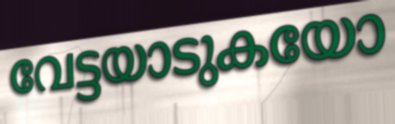
വേട്ടയാടുകയോ